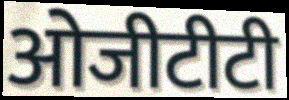
ओजीटीटी